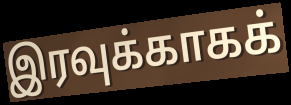
இரவுக்காகக்